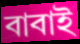
বাবাই